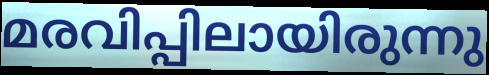
മരവിപ്പിലായിരുന്നു